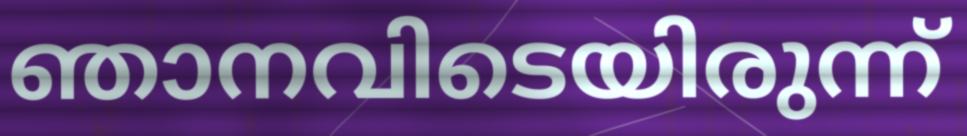
ഞാനവിടെയിരുന്ന്